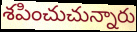
శపించుచున్నారు